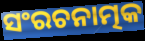
ସଂରଚନାତ୍ମକ